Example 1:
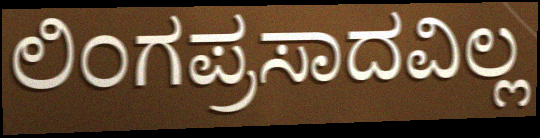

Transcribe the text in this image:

ಲಿಂಗಪ್ರಸಾದವಿಲ್ಲ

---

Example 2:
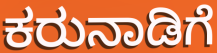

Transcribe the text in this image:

ಕರುನಾಡಿಗೆ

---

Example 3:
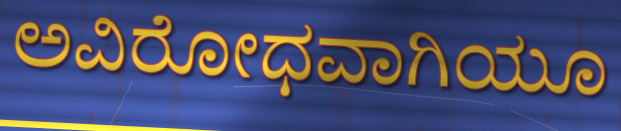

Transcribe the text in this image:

ಅವಿರೋಧವಾಗಿಯೂ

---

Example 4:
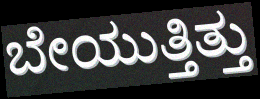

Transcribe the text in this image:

ಬೇಯುತ್ತಿತ್ತು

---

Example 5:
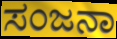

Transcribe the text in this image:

ಸಂಜನಾ